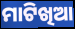
ମାଟିଖିଆ